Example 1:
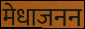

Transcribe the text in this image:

मेधाजनन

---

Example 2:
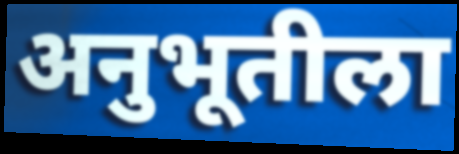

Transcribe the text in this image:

अनुभूतीला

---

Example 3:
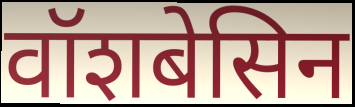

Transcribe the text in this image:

वॉशबेसिन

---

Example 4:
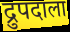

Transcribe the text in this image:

द्रुपदाला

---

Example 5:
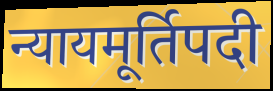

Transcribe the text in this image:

न्यायमूर्तिपदी